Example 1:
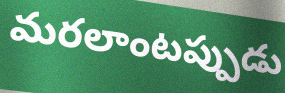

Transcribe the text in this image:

మరలాంటప్పుడు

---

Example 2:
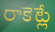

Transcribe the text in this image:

రాకెట్లే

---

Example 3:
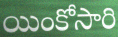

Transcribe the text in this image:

యింకోసారి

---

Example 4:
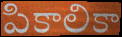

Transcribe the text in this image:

పికాలికా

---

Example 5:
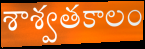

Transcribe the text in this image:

శాశ్వతకాలం